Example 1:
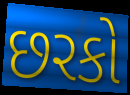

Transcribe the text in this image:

છરકો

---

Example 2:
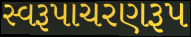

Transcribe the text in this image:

સ્વરૂપાચરણરૂપ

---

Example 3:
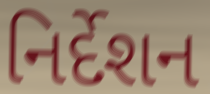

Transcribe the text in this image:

નિર્દેશન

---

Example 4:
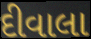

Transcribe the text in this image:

દીવાલા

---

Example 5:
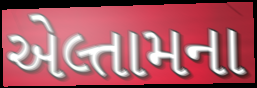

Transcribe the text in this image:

એલ્તામના